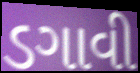
ડગાવી